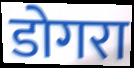
डोगरा